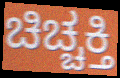
ಚಿಚ್ಚಕ್ತಿ